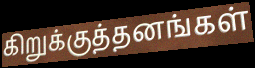
கிறுக்குத்தனங்கள்